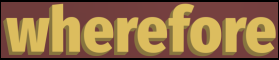
wherefore